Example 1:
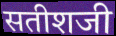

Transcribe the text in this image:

सतीशजी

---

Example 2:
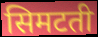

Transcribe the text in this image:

सिमटती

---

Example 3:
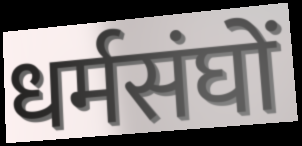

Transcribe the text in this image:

धर्मसंघों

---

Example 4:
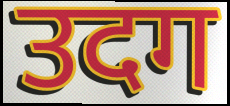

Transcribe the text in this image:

उदग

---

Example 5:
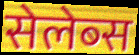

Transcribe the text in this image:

सेलेब्‍स